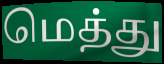
மெத்து